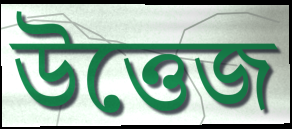
উত্তেজ